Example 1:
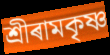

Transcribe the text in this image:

শ্ৰীৰামকৃষ্ণ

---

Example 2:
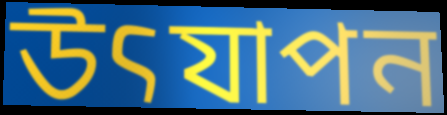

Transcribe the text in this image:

উৎযাপন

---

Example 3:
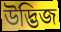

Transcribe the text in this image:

উদ্ভিজ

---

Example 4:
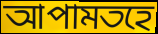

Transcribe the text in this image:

আপামতহে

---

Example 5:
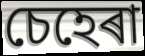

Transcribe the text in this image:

চেহেৰা